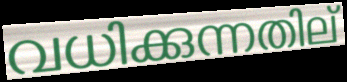
വധിക്കുന്നതില്